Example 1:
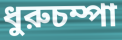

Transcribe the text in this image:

ধুরুচম্পা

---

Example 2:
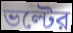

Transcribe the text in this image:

ভল্টের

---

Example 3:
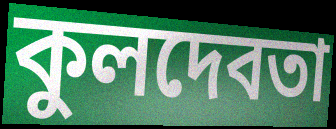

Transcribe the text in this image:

কুলদেবতা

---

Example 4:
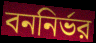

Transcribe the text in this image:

বননির্ভর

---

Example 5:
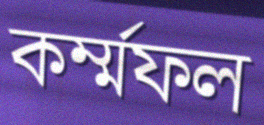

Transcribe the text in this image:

কর্ম্মফল